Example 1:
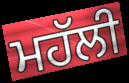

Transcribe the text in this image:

ਮਹੱਲੀ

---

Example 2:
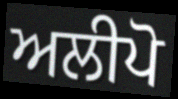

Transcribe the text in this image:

ਅਲੀਪੋ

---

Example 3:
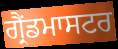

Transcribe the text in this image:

ਗ੍ਰੈਂਡਮਾਸਟਰ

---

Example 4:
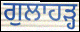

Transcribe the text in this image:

ਗੁਲਾਹੜ੍ਹ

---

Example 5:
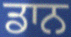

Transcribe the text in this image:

ਡਾਨ